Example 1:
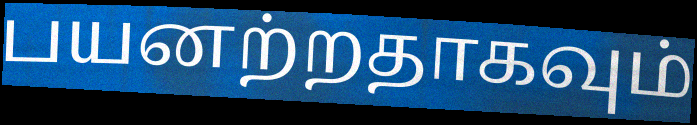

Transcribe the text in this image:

பயனற்றதாகவும்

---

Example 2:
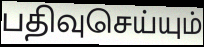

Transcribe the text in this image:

பதிவுசெய்யும்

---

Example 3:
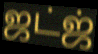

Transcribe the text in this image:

ஜட்ஜ்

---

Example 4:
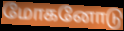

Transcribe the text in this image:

மோகனோடு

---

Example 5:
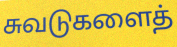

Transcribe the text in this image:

சுவடுகளைத்